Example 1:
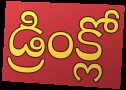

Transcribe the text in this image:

డ్రింక్లో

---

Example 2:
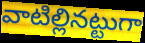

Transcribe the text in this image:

వాటిల్లినట్టుగా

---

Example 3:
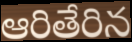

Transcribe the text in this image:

ఆరితేరిన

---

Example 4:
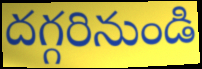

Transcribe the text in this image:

దగ్గరినుండి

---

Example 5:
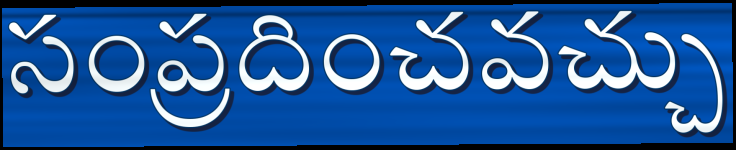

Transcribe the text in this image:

సంప్రదించవచ్చు